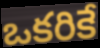
ఒకరికే